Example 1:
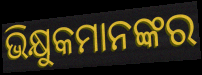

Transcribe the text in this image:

ଭିକ୍ଷୁକମାନଙ୍କର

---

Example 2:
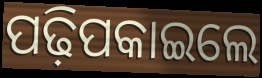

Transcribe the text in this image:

ପଢ଼ିପକାଇଲେ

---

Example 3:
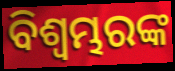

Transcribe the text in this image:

ବିଶ୍ୱମ୍ଭରଙ୍କ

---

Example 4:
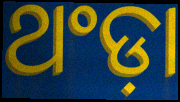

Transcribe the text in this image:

ଥଂଡ଼ା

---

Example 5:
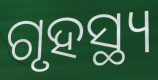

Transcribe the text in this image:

ଗୃହସ୍ଥ୍ୟ